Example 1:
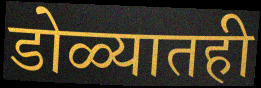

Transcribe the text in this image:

डोळ्यातही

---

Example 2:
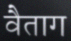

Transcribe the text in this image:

वैताग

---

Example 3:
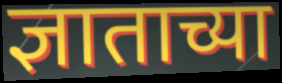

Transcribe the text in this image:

ज्ञाताच्या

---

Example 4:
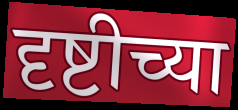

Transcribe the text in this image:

दृष्टीच्या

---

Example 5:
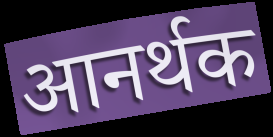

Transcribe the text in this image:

आनर्थक